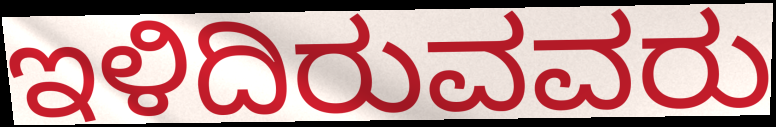
ಇಳಿದಿರುವವರು